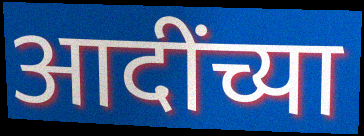
आदींच्या